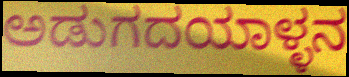
ಅಡುಗದಯಾಳ್ಳನ